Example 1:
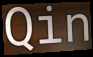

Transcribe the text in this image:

Qin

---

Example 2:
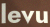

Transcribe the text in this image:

levu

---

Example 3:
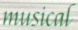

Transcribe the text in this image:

musical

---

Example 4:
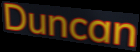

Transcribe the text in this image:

Duncan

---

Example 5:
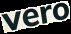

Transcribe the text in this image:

vero